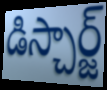
డిస్చార్జ్